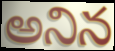
అనిన